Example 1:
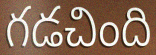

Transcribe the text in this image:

గడచింది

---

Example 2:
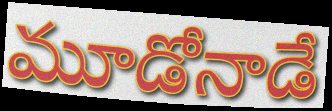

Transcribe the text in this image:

మూడోనాడే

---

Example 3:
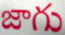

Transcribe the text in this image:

జాగు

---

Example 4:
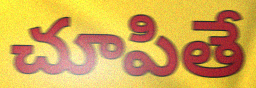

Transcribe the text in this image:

చూపితే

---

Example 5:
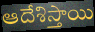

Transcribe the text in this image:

ఆదేశిస్తాయి